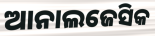
ଆନାଲଜେସିକ